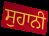
ਸੁਹਾਨੀ